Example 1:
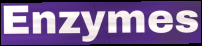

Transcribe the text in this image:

Enzymes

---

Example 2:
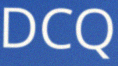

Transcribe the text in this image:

DCQ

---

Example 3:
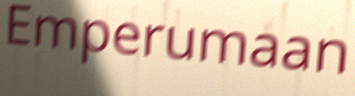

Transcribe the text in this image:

Emperumaan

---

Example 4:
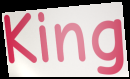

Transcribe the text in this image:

King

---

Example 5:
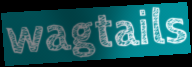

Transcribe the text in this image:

wagtails